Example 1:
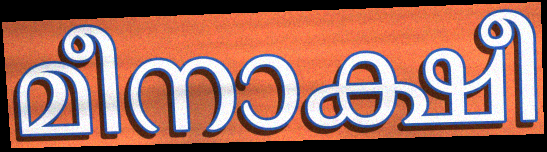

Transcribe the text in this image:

മീനാക്ഷീ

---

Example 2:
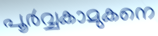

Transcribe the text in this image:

പൂർവ്വകാമുകനെ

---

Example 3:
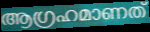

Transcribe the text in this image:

ആഗ്രഹമാണത്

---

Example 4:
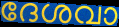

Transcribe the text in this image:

ദേശവാ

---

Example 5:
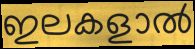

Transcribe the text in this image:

ഇലകളാൽ